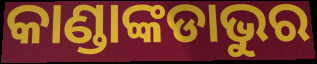
କାଣ୍ଡାଙ୍କଡାଭୁର